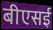
बीएसई